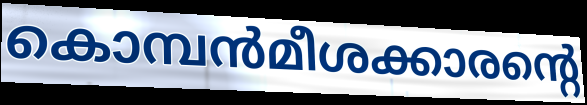
കൊമ്പൻമീശക്കാരന്റെ